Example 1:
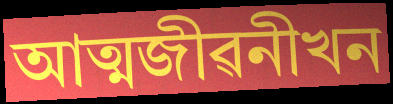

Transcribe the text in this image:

আত্মজীৱনীখন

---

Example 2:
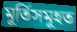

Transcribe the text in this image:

মূৰ্তিসমূহত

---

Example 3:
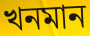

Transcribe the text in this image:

খনমান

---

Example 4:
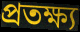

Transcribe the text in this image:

প্ৰতক্ষ্য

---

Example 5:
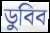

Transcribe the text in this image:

ডুবিব